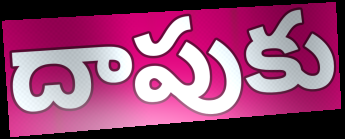
దాపుకు